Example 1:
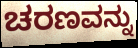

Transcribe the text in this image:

ಚರಣವನ್ನು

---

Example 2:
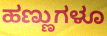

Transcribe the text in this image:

ಹಣ್ಣುಗಳೂ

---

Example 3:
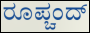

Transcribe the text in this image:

ರೂಪ್ಚಂದ್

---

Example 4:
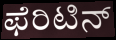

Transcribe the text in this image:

ಫೆರಿಟಿನ್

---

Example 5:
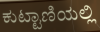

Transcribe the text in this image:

ಕುಟ್ಟಾಣಿಯಲ್ಲಿ